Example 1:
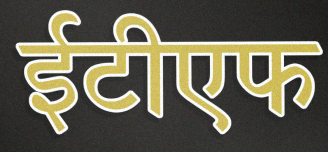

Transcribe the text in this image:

ईटीएफ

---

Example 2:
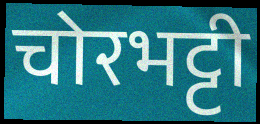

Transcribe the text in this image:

चोरभट्टी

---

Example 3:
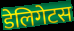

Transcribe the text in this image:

डेलिगेटस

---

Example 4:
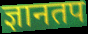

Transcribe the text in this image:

ज्ञानतप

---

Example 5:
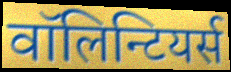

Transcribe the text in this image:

वॉलिन्टियर्स